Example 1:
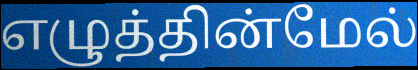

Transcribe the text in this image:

எழுத்தின்மேல்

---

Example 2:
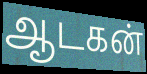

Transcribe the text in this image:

ஆடகன்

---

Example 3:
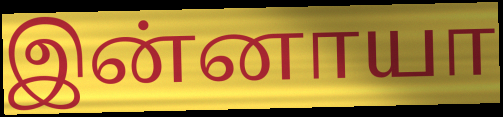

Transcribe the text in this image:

இன்னாயா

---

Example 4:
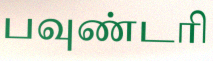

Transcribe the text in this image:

பவுண்டரி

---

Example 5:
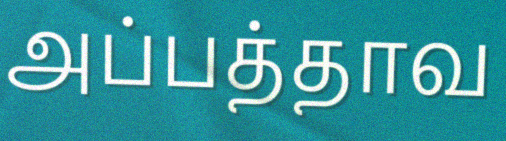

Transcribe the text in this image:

அப்பத்தாவ